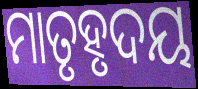
ମାତୃହୃଦୟ